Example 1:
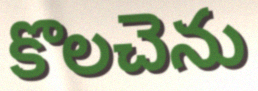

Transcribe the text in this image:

కొలచెను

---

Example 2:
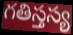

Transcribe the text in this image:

గతిస్తస్య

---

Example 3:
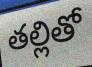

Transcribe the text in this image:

తల్లితో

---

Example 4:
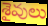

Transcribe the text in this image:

శైవులు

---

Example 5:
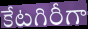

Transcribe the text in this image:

కేటగిరీగా